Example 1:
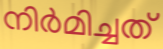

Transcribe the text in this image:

നിർമിച്ചത്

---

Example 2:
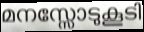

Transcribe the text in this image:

മനസ്സോടുകൂടി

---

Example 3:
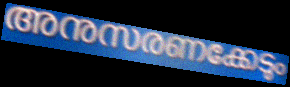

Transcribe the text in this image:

അനുസരണക്കേടും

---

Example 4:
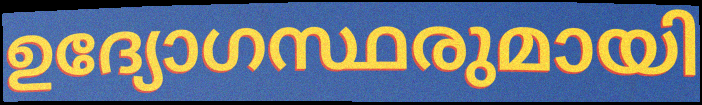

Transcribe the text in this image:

ഉദ്യോഗസ്ഥരുമായി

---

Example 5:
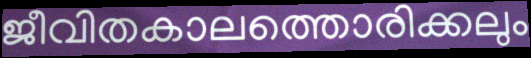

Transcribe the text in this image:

ജീവിതകാലത്തൊരിക്കലും